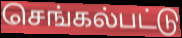
செங்கல்பட்டு